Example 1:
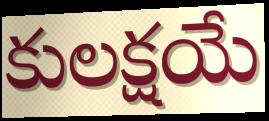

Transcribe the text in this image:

కులక్షయే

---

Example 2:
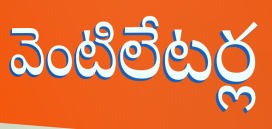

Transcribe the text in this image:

వెంటిలేటర్ల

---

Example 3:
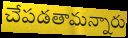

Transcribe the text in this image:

చేపడతామన్నారు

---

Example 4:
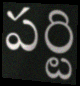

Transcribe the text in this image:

పర్టి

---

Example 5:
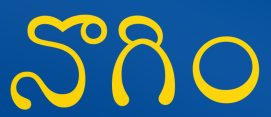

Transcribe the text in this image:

నొగిం